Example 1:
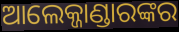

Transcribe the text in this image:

ଆଲେକ୍ଜାଣ୍ଡାରଙ୍କର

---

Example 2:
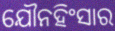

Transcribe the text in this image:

ଯୌନହିଂସାର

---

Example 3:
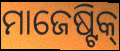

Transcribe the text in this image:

ମାଜେଷ୍ଟିକ୍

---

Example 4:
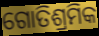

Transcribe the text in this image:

ଗୋତିଶ୍ରମିକ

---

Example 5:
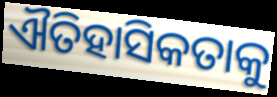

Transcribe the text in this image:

ଐତିହାସିକତାକୁ